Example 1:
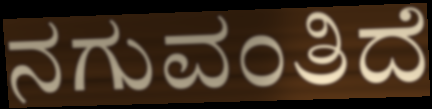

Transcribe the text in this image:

ನಗುವಂತಿದೆ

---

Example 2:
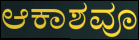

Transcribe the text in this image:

ಆಕಾಶವೂ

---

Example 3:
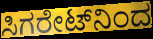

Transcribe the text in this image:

ಸಿಗರೇಟ್‌ನಿಂದ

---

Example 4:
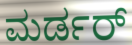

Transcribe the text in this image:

ಮರ್ಡರ್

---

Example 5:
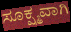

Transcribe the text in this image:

ಸೂಕ್ಷ್ಮವಾಗಿ